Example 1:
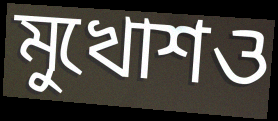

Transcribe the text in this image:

মুখোশও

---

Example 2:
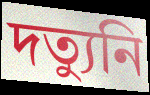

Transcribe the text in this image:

দত্যুনি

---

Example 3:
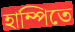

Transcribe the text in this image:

হাম্পিতে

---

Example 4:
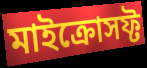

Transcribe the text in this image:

মাইক্রোসফ্ট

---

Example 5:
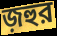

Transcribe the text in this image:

জ়হুর